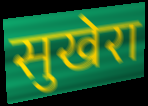
सुखेरा